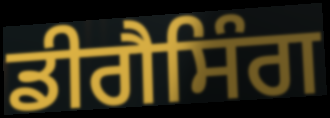
ਡੀਗੈਸਿੰਗ